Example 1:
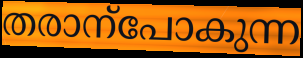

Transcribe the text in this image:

തരാന്പോകുന്ന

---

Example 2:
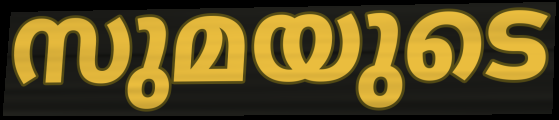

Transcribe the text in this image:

സുമയുടെ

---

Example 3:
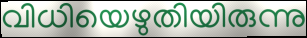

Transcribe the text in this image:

വിധിയെഴുതിയിരുന്നു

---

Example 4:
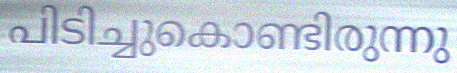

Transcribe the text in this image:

പിടിച്ചുകൊണ്ടിരുന്നു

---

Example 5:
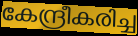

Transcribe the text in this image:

കേന്ദ്രീകരിച്ച